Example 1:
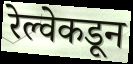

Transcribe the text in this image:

रेल्वेकडून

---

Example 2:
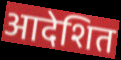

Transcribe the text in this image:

आदेशित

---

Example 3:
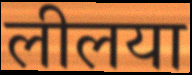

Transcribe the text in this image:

लीलया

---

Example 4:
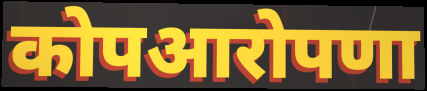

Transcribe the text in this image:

कोपआरोपणा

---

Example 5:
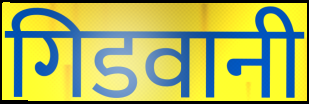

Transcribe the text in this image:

गिडवानी